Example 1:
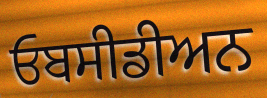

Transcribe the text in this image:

ਓਬਸੀਡੀਅਨ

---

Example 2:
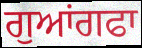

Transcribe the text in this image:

ਗੁਆਂਗਫਾ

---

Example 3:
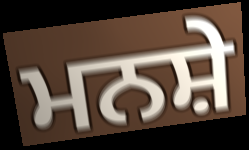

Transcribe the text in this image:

ਮਨਸ਼ੇ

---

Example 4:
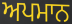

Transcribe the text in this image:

ਅਪਮਾਨ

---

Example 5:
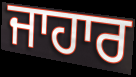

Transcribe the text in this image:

ਜਾਹਾਰ